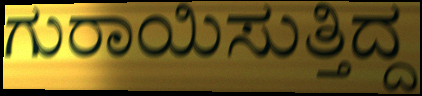
ಗುರಾಯಿಸುತ್ತಿದ್ದ